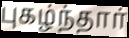
புகழ்ந்தார்